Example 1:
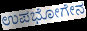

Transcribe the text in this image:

ಉಪಭೋಗೇನ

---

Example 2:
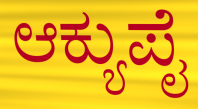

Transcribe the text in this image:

ಆಕ್ಯುಪೈ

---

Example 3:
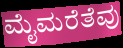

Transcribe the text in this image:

ಮೈಮರೆತೆವು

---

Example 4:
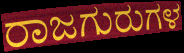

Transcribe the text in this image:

ರಾಜಗುರುಗಳ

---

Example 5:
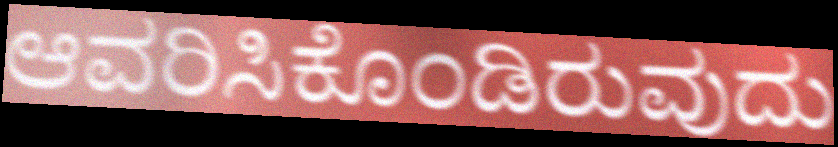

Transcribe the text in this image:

ಆವರಿಸಿಕೊಂಡಿರುವುದು